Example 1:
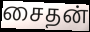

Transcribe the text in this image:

சைதன்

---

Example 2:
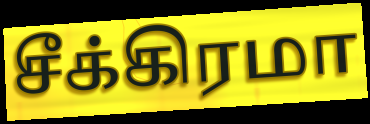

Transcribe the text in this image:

சீக்கிரமா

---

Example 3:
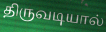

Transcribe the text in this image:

திருவடியால்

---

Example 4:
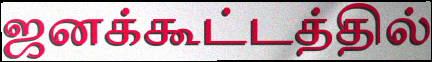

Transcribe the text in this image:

ஜனக்கூட்டத்தில்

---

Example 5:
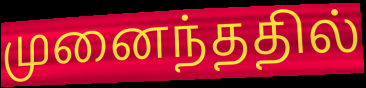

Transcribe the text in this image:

முனைந்ததில்